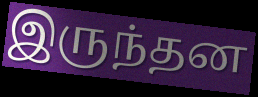
இருந்தன